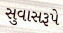
સુવાસરૂપે